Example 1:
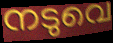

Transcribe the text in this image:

നടുവെ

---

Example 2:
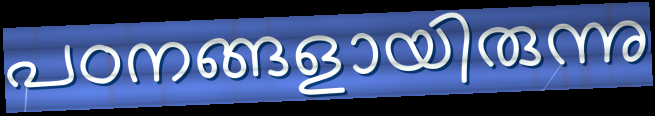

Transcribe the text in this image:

പഠനങ്ങളായിരുന്നു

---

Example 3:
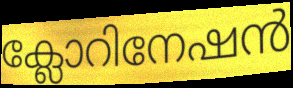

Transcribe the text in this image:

ക്ലോറിനേഷൻ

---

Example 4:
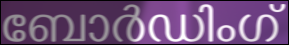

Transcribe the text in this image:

ബോർഡിംഗ്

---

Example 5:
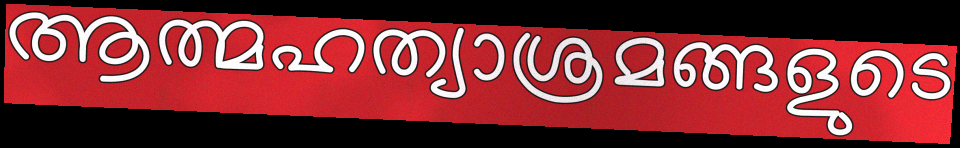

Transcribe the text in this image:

ആത്മഹത്യാശ്രമങ്ങളുടെ